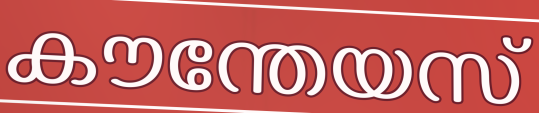
കൗന്തേയസ്